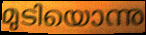
മുടിയൊന്നു